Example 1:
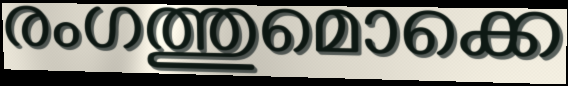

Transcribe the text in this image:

രംഗത്തുമൊക്കെ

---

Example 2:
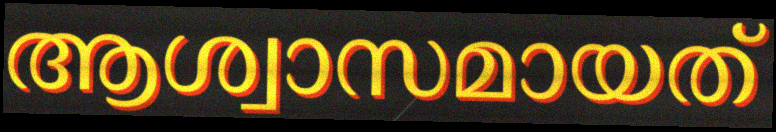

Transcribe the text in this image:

ആശ്വാസമായത്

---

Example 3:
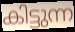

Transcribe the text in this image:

കിട്ടുന്ന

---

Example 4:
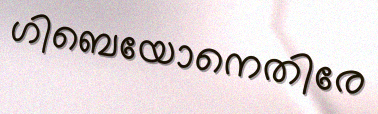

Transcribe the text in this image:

ഗിബെയോനെതിരേ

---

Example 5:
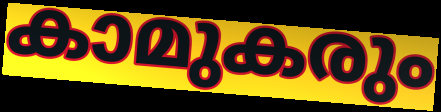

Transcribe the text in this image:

കാമുകരും